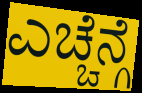
ಎಚ್ಚೆನ್ಗೆ